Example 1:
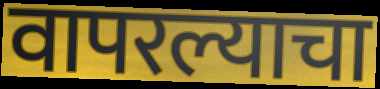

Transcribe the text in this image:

वापरल्याचा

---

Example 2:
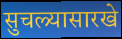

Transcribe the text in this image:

सुचल्यासारखे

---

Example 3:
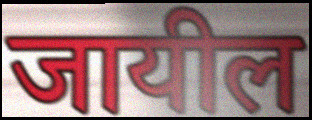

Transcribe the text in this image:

जायील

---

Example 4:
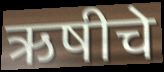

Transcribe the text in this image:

ऋषीचे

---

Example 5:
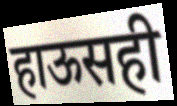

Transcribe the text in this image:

हाऊसही